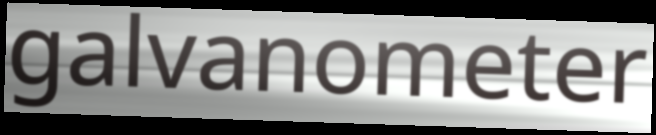
galvanometer